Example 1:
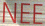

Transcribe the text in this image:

NEE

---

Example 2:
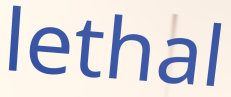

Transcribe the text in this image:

lethal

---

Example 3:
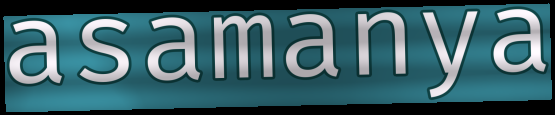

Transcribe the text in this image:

asamanya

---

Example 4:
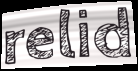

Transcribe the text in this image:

relid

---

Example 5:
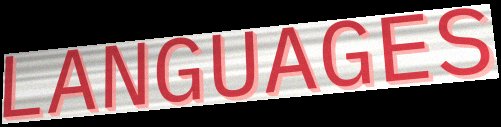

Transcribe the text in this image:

LANGUAGES